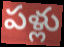
పళ్లు